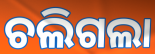
ଚଲିଗଲା